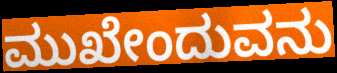
ಮುಖೇಂದುವನು